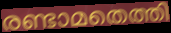
രണ്ടാമതെത്തി